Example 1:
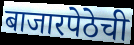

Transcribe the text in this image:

बाजारपेठेची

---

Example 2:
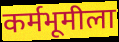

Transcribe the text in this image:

कर्मभूमीला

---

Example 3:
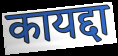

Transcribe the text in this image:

कायद्दा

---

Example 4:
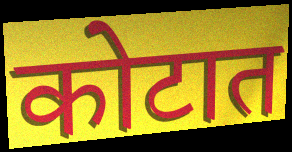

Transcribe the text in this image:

कोटात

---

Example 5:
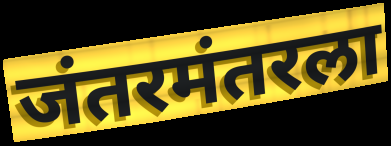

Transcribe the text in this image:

जंतरमंतरला